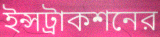
ইন্সট্রাকশনের